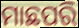
ମାଛପରି